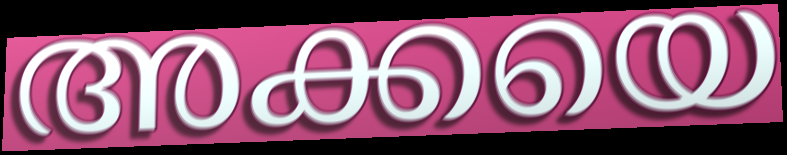
അക്കയെ